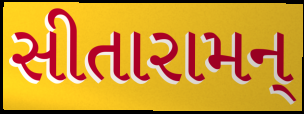
સીતારામન્